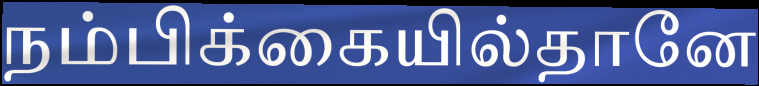
நம்பிக்கையில்தானே